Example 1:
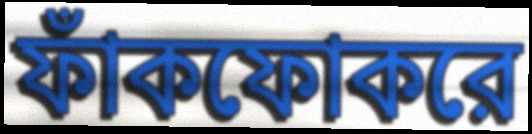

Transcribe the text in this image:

ফাঁকফোকরে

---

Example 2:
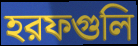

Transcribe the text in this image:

হরফগুলি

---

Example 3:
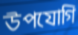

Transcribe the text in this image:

উপযোগি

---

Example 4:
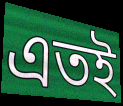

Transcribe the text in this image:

এতই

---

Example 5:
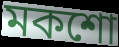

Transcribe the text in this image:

মকশো